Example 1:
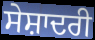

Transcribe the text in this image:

ਸੇਸ਼ਾਦਰੀ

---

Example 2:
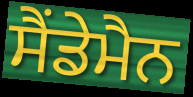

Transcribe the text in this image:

ਸੈਂਡੇਮੈਨ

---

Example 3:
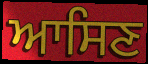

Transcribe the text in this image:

ਆਸਿਣ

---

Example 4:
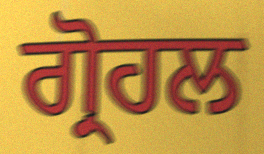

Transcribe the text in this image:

ਗ੍ਰੋਹਲ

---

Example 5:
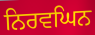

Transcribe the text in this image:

ਨਿਰਵਘਿਨ